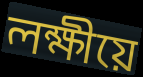
লক্ষীয়ে